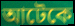
আটেকে